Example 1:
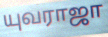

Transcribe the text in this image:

யுவராஜா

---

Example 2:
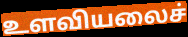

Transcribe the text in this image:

உளவியலைச்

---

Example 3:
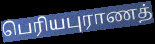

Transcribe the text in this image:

பெரியபுராணத்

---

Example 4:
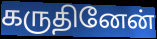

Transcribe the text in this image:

கருதினேன்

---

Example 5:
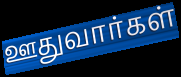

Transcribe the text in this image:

ஊதுவார்கள்